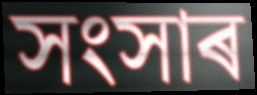
সংসাৰ